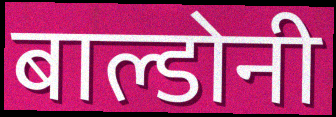
बाल्डोनी